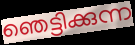
ഞെട്ടിക്കുന്ന